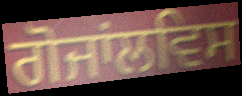
ਗੋਜਾਂਲਵਿਸ